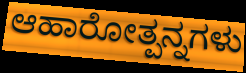
ಆಹಾರೋತ್ಪನ್ನಗಳು